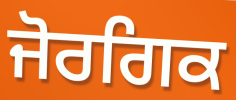
ਜੋਰਗਿਕ